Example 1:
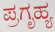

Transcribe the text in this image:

ಪ್ರಗೃಹ್ಯ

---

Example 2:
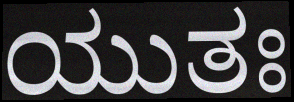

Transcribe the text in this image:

ಯುತಃ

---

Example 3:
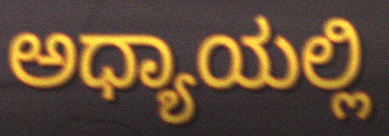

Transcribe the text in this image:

ಅಧ್ಯಾಯಲ್ಲಿ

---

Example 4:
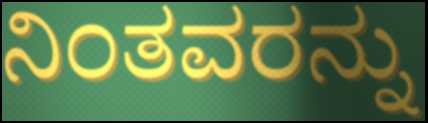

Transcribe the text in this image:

ನಿಂತವರನ್ನು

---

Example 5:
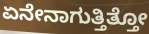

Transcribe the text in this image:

ಏನೇನಾಗುತ್ತಿತ್ತೋ